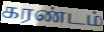
கரண்டம்